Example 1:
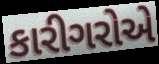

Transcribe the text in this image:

કારીગરોએ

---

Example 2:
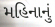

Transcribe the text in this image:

મહિનાનું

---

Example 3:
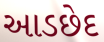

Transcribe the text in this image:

આડછેદ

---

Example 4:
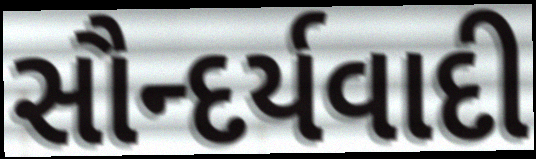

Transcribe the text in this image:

સૌન્દર્યવાદી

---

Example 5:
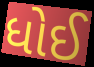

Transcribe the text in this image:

ધોઈ